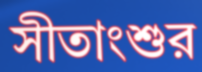
সীতাংশুর